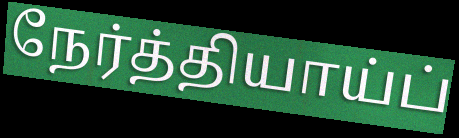
நேர்த்தியாய்ப்